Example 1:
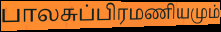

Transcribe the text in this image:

பாலசுப்பிரமணியமும்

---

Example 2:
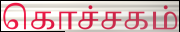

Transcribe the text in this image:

கொச்சகம்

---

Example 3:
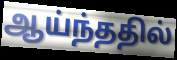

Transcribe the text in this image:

ஆய்ந்ததில்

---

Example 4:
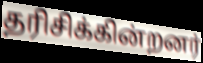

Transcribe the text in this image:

தரிசிக்கின்றனர்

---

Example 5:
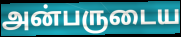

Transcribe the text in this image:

அன்பருடைய